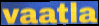
vaatla